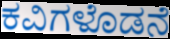
ಕವಿಗಳೊಡನೆ